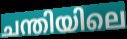
ചന്തിയിലെ